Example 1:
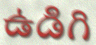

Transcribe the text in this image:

ఉడిగి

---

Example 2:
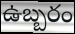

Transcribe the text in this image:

ఉబ్బరం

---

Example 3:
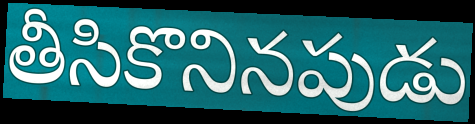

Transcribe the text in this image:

తీసికొనినపుడు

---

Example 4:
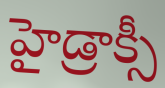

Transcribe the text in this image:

హైడ్రాక్సీ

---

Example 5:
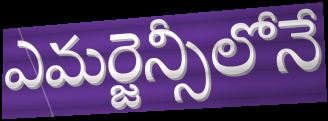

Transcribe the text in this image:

ఎమర్జెన్సీలోనే